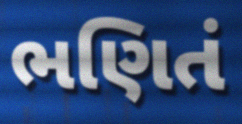
ભણિતં